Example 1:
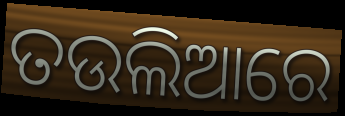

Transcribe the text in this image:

ତଉଲିଆରେ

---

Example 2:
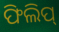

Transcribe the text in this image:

ଫିଲିପ୍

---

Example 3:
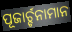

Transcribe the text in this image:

ପୂଜାର୍ଚ୍ଚନାମାନ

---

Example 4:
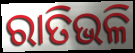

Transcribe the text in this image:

ରାତିଭଳି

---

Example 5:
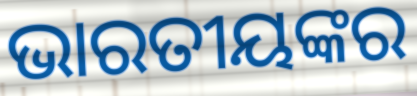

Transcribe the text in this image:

ଭାରତୀୟଙ୍କର